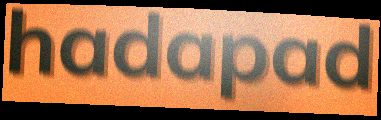
hadapad